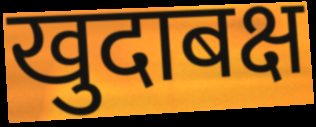
खुदाबक्ष